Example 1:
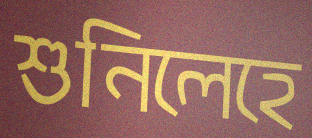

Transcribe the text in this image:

শুনিলেহে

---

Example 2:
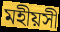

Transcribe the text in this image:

মহীয়সী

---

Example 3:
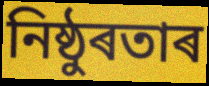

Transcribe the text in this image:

নিষ্ঠুৰতাৰ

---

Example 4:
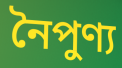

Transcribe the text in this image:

নৈপুণ্য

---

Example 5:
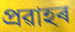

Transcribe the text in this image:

প্ৰৱাহৰ